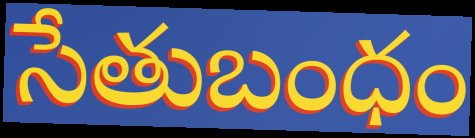
సేతుబంధం